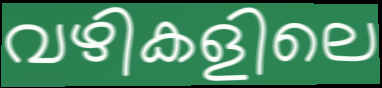
വഴികളിലെ